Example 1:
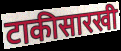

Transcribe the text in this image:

टाकीसारखी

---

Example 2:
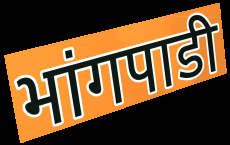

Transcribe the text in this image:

भांगपाडी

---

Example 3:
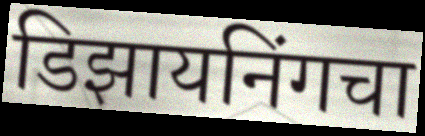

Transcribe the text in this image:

डिझायनिंगचा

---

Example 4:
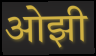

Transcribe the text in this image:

ओझी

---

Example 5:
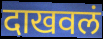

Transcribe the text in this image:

दाखवलं